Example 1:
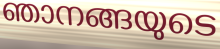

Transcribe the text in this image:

ഞാനങ്ങയുടെ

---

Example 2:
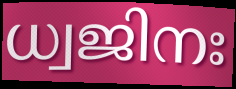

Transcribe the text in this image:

ധ്വജിനഃ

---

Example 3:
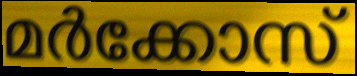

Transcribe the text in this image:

മർക്കോസ്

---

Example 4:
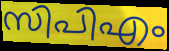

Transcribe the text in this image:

സിപിഎം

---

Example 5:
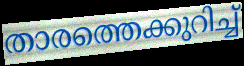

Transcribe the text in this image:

താരത്തെക്കുറിച്ച്